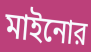
মাইনোর